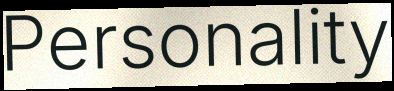
Personality